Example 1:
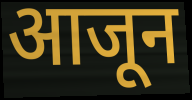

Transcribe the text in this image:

आजून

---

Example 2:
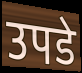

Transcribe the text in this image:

उपडे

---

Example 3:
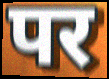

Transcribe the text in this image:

पर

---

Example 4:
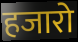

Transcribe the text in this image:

हजारो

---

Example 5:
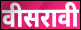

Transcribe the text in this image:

वीसरावी